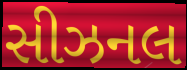
સીઝનલ